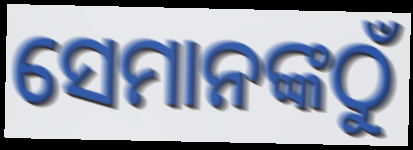
ସେମାନଙ୍କଠୁଁ